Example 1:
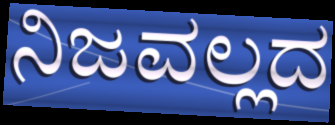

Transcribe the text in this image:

ನಿಜವಲ್ಲದ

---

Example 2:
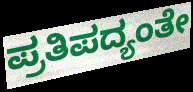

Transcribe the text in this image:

ಪ್ರತಿಪದ್ಯಂತೇ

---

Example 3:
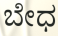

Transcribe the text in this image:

ಬೇಧ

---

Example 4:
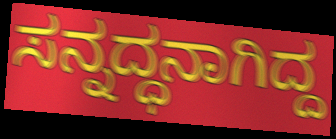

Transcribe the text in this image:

ಸನ್ನದ್ಧನಾಗಿದ್ದ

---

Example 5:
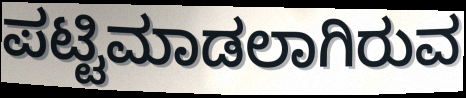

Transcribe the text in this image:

ಪಟ್ಟಿಮಾಡಲಾಗಿರುವ